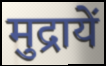
मुद्रायें